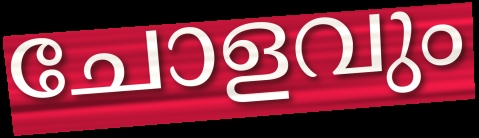
ചോളവും